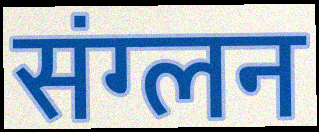
संग्लन